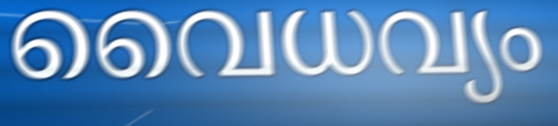
വൈധവ്യം